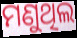
ମଣୁଥିଲ